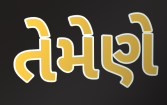
તેમેણે